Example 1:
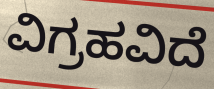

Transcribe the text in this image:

ವಿಗ್ರಹವಿದೆ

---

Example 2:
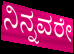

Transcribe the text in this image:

ನಿನ್ನವರೇ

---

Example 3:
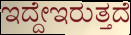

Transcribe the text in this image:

ಇದ್ದೇಇರುತ್ತದೆ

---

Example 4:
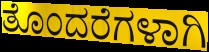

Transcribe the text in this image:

ತೊಂದರೆಗಳಾಗಿ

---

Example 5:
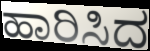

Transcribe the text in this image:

ಹಾರಿಸಿದ